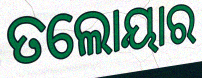
ତଲୋୟାର